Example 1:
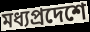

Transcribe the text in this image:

মধ্যপ্রদেশে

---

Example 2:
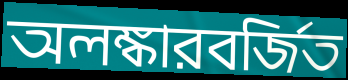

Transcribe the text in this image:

অলঙ্কারবর্জিত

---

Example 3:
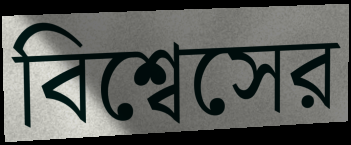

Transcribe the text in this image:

বিশ্বেসের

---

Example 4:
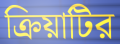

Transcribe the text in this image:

ক্রিয়াটির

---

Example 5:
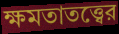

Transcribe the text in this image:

ক্ষমতাতত্ত্বের